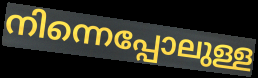
നിന്നെപ്പോലുള്ള